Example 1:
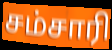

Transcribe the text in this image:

சம்சாரி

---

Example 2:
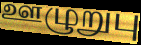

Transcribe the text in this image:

ஊழுறுபு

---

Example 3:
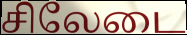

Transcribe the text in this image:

சிலேடை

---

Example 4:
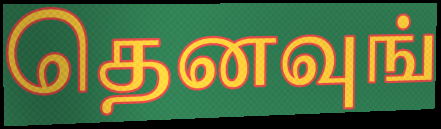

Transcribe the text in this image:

தெனவுங்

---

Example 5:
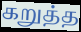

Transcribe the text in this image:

கறுத்த